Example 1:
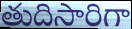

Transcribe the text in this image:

తుదిసారిగా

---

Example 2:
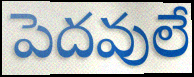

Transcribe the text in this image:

పెదవులే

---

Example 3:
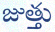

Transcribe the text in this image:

జుత్తు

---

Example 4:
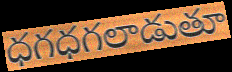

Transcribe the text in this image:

ధగధగలాడుతూ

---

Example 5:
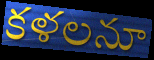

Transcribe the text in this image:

కళలనూ